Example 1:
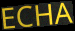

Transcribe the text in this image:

ECHA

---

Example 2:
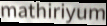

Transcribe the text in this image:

mathiriyum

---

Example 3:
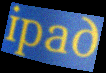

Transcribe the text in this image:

ipad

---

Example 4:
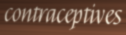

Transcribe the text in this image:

contraceptives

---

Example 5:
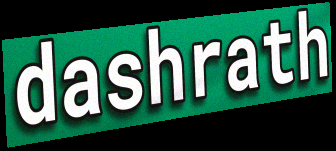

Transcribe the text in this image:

dashrath